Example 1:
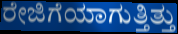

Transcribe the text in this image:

ರೇಜಿಗೆಯಾಗುತ್ತಿತ್ತು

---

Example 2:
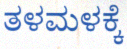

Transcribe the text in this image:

ತಳಮಳಕ್ಕೆ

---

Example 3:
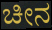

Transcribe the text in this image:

ಚೀನ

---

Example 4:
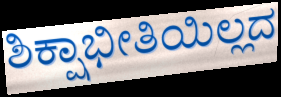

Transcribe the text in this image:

ಶಿಕ್ಷಾಭೀತಿಯಿಲ್ಲದ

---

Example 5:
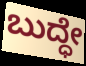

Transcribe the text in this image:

ಬುದ್ಧೇ